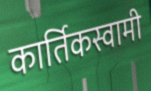
कार्तिकस्वामी